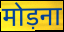
मोड़ना